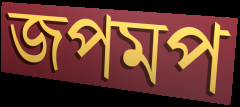
জপমপ